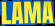
LAMA